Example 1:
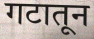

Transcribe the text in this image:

गटातून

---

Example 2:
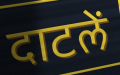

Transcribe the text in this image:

दाटलें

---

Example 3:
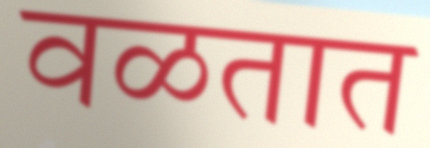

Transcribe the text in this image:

वळतात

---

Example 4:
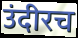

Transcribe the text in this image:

उंदीरच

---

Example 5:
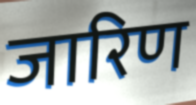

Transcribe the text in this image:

जारिण